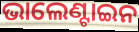
ଭାଲେଣ୍ଟାଇନ